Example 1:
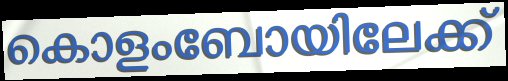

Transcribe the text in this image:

കൊളംബോയിലേക്ക്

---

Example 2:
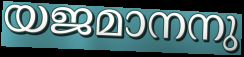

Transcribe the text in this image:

യജമാനനു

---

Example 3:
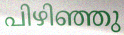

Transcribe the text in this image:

പിഴിഞ്ഞു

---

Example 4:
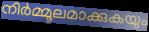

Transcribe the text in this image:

നിർമ്മൂലമാക്കുകയും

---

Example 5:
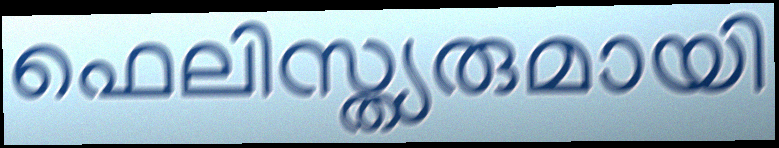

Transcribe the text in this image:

ഫെലിസ്ത്യരുമായി